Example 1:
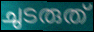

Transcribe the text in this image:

ചുടരുത്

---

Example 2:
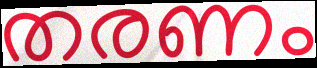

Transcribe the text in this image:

തരണം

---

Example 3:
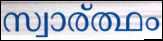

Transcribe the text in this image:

സ്വാര്ത്ഥം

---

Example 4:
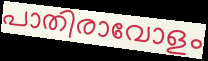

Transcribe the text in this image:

പാതിരാവോളം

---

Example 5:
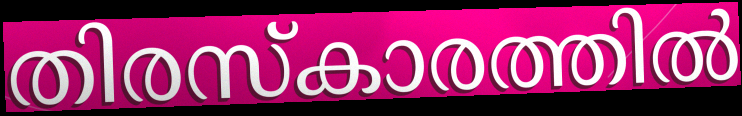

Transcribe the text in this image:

തിരസ്കാരത്തിൽ